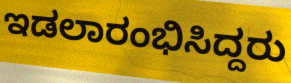
ಇಡಲಾರಂಭಿಸಿದ್ದರು